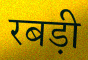
रबड़ी